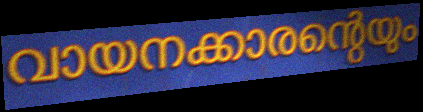
വായനക്കാരന്റെയും